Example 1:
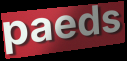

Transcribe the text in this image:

paeds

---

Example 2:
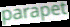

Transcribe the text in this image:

parapet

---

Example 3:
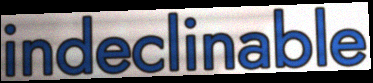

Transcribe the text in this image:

indeclinable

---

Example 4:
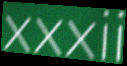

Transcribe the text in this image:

xxxii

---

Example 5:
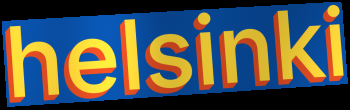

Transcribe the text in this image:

helsinki